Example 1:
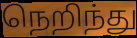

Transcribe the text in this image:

நெறிந்து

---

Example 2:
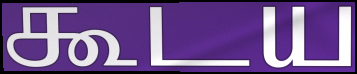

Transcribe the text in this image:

கூடய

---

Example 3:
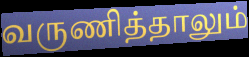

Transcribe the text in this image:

வருணித்தாலும்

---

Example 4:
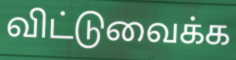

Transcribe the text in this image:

விட்டுவைக்க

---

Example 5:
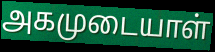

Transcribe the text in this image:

அகமுடையாள்